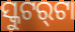
ସ୍କୁଟର୍‌ଟା